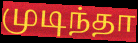
முடிந்தா